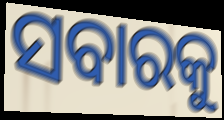
ସବାରକୁ